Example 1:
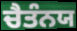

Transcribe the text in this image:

ਚੈਤੰਨਯ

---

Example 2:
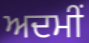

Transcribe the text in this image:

ਅਦਮੀਂ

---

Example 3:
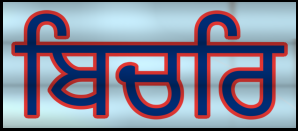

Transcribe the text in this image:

ਬਿਚਰਿ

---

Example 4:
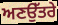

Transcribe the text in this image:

ਅਣਉੱਤਰੇ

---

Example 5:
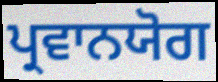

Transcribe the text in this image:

ਪ੍ਰਵਾਨਯੋਗ